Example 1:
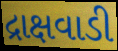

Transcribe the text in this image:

દ્રાક્ષવાડી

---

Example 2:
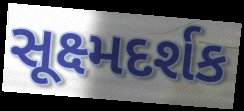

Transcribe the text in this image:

સૂક્ષ્મદર્શક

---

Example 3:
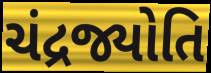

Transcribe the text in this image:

ચંદ્રજ્યોતિ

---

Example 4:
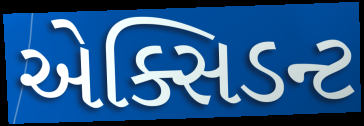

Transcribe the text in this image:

એક્સિડન્ટ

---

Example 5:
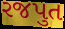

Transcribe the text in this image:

રજપુત